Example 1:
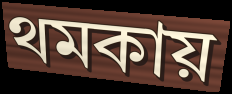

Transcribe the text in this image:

থমকায়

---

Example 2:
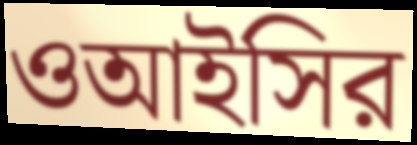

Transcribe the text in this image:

ওআইসির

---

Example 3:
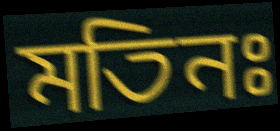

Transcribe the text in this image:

মতিনঃ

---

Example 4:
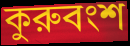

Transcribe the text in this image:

কুরুবংশ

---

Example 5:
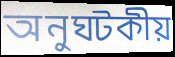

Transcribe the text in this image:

অনুঘটকীয়